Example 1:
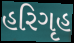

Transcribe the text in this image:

હરિગૃહ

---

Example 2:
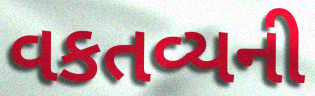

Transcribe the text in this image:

વકતવ્યની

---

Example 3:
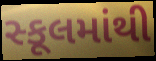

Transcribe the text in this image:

સ્કૂલમાંથી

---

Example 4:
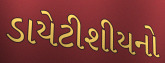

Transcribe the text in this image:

ડાયેટીશીયનો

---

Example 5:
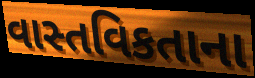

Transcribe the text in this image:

વાસ્તવિકતાના